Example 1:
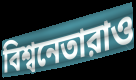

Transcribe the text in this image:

বিশ্বনেতারাও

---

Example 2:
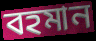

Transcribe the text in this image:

বহমান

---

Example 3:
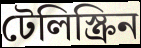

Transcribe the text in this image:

টেলিস্ক্রিন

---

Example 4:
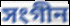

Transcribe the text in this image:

সংগীন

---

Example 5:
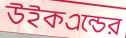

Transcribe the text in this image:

উইকএন্ডের